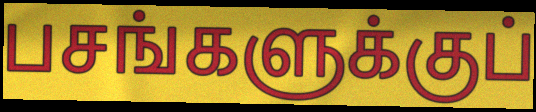
பசங்களுக்குப்